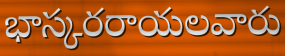
భాస్కరరాయలవారు